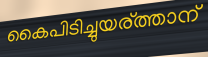
കൈപിടിച്ചുയര്ത്താന്